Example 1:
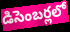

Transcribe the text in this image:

డిసెంబర్లలో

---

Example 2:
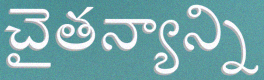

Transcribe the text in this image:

చైతన్యాన్ని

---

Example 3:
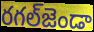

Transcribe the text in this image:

రగల్‌జెండా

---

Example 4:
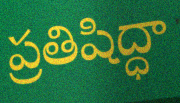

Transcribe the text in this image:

ప్రతిషిద్ధా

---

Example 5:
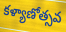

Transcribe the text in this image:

కళ్యాణోత్సవ